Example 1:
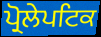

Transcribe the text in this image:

ਪ੍ਰੋਲੇਪਟਿਕ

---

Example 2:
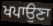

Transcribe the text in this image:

ਖਪਾਉਣਾ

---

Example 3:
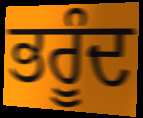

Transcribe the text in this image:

ਭਰੂੰਦ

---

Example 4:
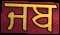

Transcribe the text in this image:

ਜਬ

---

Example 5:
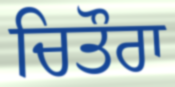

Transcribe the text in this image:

ਚਿਤੌਰਾ